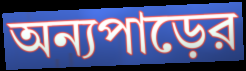
অন্যপাড়ের